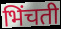
भिंचती